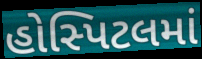
હોસ્પિટલમાં